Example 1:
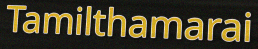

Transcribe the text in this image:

Tamilthamarai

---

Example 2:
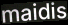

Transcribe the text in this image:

maidis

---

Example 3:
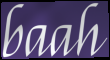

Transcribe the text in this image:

baah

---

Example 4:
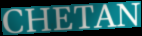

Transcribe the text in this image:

CHETAN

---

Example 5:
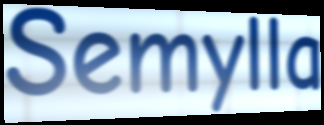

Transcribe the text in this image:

Semylla